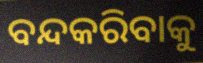
ବନ୍ଦକରିବାକୁ